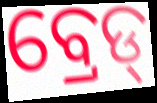
ବ୍ରେଡ୍